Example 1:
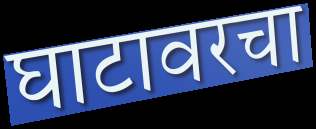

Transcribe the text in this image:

घाटावरचा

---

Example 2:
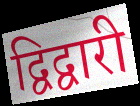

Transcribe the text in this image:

द्विद्वारी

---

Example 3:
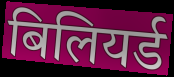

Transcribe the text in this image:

बिलियर्ड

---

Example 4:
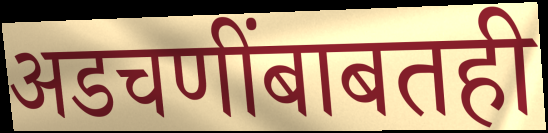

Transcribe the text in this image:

अडचणींबाबतही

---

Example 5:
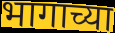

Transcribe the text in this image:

भागाच्या